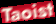
Taoist